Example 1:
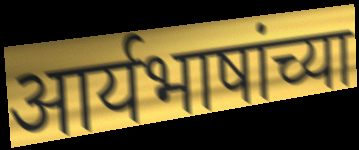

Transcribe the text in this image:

आर्यभाषांच्या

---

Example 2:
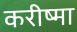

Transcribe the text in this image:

करीष्मा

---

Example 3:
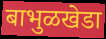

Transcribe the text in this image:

बाभुळखेडा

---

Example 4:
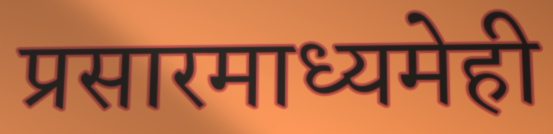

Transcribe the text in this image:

प्रसारमाध्यमेही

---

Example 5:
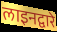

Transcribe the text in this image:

लाइनद्वारे